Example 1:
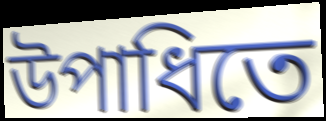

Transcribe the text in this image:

উপাধিতে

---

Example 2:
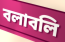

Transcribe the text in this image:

বলাবলি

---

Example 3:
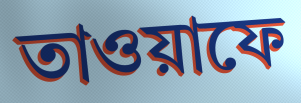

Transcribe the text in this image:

তাওয়াফে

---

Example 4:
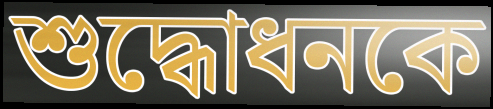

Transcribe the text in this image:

শুদ্ধোধনকে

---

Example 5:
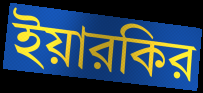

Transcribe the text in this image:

ইয়ারকির